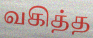
வகித்த